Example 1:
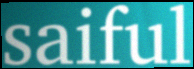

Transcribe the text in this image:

saiful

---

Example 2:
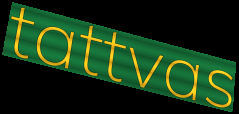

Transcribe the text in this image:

tattvas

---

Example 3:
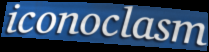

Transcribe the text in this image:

iconoclasm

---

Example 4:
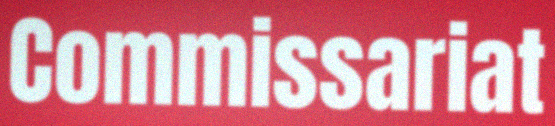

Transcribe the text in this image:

Commissariat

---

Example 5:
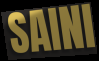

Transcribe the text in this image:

SAINI